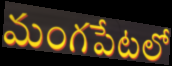
మంగపేటలో